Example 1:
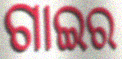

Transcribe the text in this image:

ଗାଇର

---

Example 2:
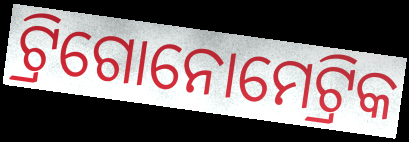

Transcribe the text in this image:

ଟ୍ରିଗୋନୋମେଟ୍ରିକ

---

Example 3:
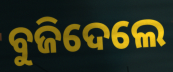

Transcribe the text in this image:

ବୁଜିଦେଲେ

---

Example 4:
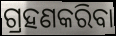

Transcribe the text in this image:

ଗ୍ରହଣକରିବା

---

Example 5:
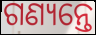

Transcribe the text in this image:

ଗଣ୍ୟନ୍ତେ